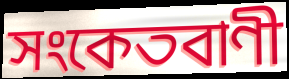
সংকেতবাণী